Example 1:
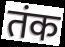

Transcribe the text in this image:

तंक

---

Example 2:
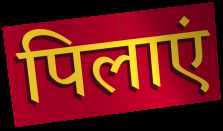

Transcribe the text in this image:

पिलाएं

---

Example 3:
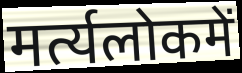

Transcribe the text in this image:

मर्त्यलोकमें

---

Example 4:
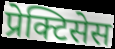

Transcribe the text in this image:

प्रेक्टिसेस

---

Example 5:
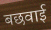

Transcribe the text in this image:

बछवाई